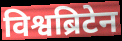
विश्वब्रिटेन